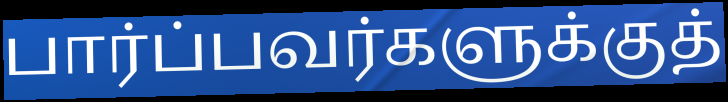
பார்ப்பவர்களுக்குத்